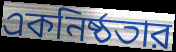
একনিষ্ঠতার